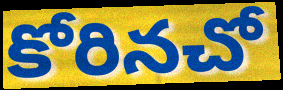
కోరినచో